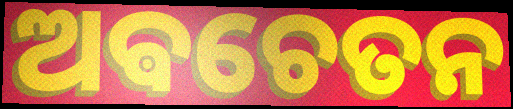
ଅଵଚେତନ